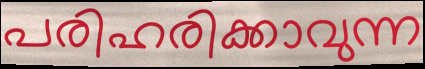
പരിഹരിക്കാവുന്ന